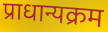
प्राधान्यक्रम